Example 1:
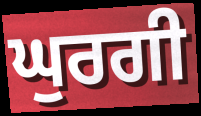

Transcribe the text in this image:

ਘੁਰਗੀ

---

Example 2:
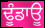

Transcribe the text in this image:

ਢੂੰਡਾਊ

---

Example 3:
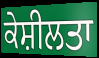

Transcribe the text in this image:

ਕੇਸ਼ੀਲਤਾ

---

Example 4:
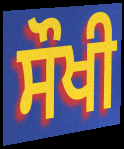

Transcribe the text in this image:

ਸੌਖੀ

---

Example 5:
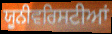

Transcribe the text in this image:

ਯੂਨੀਵਰਿਸਟੀਆਂ